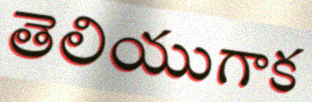
తెలియుగాక